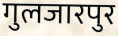
गुलजारपुर